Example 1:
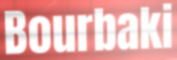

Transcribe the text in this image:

Bourbaki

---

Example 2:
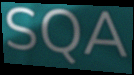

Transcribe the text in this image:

SQA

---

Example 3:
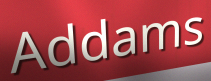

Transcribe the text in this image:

Addams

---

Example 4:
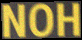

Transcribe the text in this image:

NOH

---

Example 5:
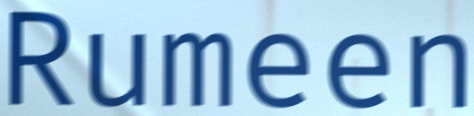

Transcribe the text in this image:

Rumeen